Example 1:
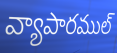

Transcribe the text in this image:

వ్యాపారముల్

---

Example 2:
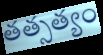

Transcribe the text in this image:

తత్సత్యం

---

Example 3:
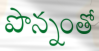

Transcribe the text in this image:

పొన్నంతో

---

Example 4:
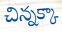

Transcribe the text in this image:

చిన్నక్కా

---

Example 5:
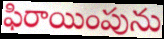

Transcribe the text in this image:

ఫిరాయింపును